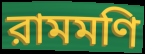
রামমণি